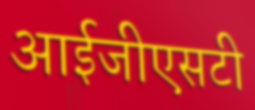
आईजीएसटी